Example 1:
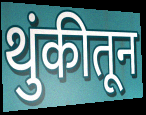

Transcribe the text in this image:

थुंकीतून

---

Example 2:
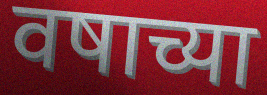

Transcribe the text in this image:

वषाच्या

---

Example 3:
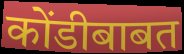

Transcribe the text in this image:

कोंडीबाबत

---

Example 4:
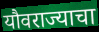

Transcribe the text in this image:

यौवराज्याचा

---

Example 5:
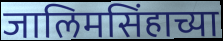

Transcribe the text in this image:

जालिमसिंहाच्या